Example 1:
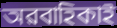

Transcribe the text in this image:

অৱবাহিকাই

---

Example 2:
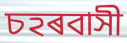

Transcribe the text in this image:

চহৰবাসী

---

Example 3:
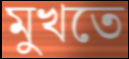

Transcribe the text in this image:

মুখতে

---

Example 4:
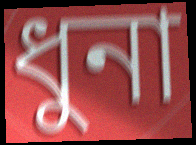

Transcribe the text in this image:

ধুনা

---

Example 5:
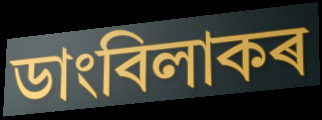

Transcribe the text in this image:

ডাংবিলাকৰ